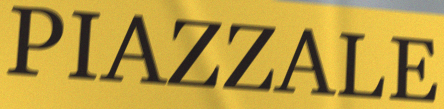
PIAZZALE